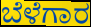
ಬೆಳೆಗಾರ